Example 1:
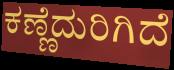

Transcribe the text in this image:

ಕಣ್ಣೆದುರಿಗಿದೆ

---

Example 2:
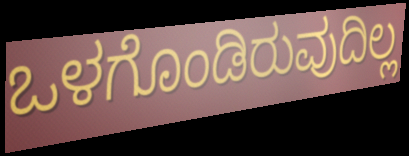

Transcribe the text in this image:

ಒಳಗೊಂಡಿರುವುದಿಲ್ಲ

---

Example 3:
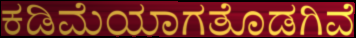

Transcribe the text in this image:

ಕಡಿಮೆಯಾಗತೊಡಗಿವೆ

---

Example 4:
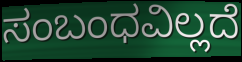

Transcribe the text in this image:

ಸಂಬಂಧವಿಲ್ಲದೆ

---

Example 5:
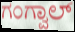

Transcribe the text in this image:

ಗಂಗ್ವಾಲ್